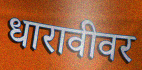
धारावीवर